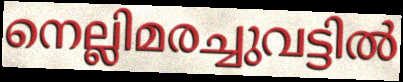
നെല്ലിമരച്ചുവട്ടിൽ